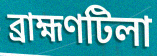
ব্রাহ্মণটিলা